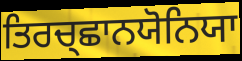
ਤਿਰਚ੍ਛਾਨਯੋਨਿਯਾ